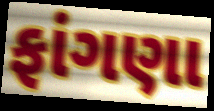
ફાંગણા